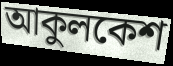
আকুলকেশ